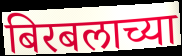
बिरबलाच्या